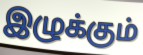
இழுக்கும்